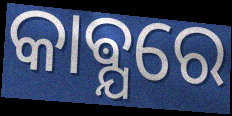
କାଵ୍ଯରେ